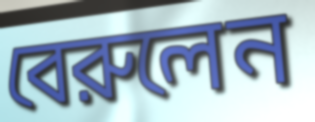
বেরুলেন